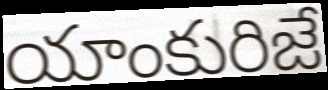
యాంకురిజే